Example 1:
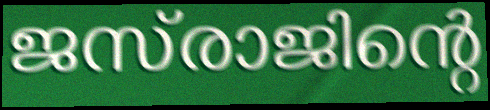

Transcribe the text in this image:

ജസ്‌രാജിന്റെ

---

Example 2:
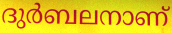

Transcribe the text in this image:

ദുർബലനാണ്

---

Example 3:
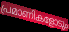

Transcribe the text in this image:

പ്രമാണികളോടും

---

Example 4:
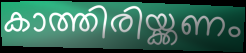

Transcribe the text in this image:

കാത്തിരിയ്ക്കണം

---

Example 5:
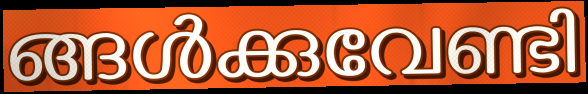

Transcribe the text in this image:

ങ്ങൾക്കുവേണ്ടി